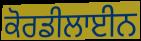
ਕੋਰਡੀਲਾਈਨ